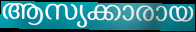
ആസ്യക്കാരായ